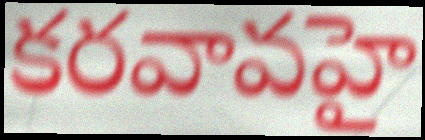
కరవావహై